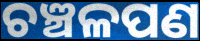
ଚଞ୍ଚଳପଣ